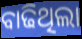
ବାଢିଥିଲା